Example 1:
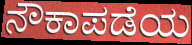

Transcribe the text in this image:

ನೌಕಾಪಡೆಯ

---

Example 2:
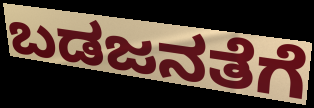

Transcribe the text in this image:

ಬಡಜನತೆಗೆ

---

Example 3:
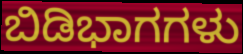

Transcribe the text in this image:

ಬಿಡಿಭಾಗಗಳು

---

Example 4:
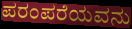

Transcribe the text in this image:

ಪರಂಪರೆಯವನು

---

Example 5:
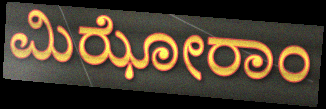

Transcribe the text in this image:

ಮಿಝೋರಾಂ